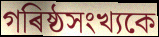
গৰিষ্ঠসংখ্যকে